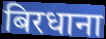
बिरधाना